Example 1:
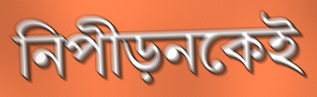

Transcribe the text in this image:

নিপীড়নকেই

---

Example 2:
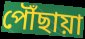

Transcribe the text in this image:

পৌঁছায়া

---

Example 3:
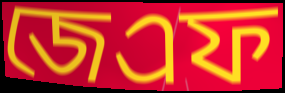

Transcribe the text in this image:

জেএফ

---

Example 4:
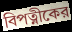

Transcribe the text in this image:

বিপত্নীকের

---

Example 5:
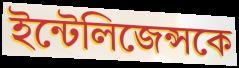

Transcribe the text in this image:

ইন্টেলিজেন্সকে